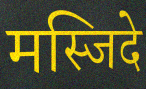
मस्जिदे